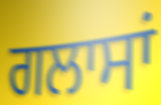
ਗਲਾਸਾਂ